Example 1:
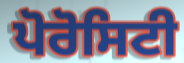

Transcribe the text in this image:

ਪੋਰੋਸਿਟੀ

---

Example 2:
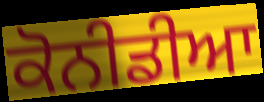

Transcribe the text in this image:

ਕੋਨੀਡੀਆ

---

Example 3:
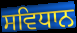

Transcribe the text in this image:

ਸਵਿਧਾਨ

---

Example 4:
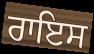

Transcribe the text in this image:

ਰਾਇਸ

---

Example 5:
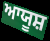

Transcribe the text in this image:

ਆਯੂਸ਼